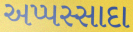
અપ્પસ્સાદા